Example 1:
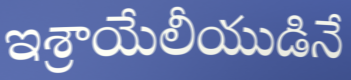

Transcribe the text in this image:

ఇశ్రాయేలీయుడినే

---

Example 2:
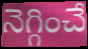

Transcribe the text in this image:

నెగ్గించే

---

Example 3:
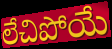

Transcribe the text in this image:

లేచిపోయే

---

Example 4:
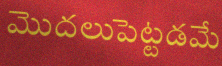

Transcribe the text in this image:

మొదలుపెట్టడమే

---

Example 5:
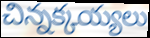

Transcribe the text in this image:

చిన్నక్కయ్యలు